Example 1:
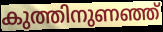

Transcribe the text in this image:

കുത്തിനുണഞ്ഞ്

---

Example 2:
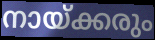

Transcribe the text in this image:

നായ്ക്കരും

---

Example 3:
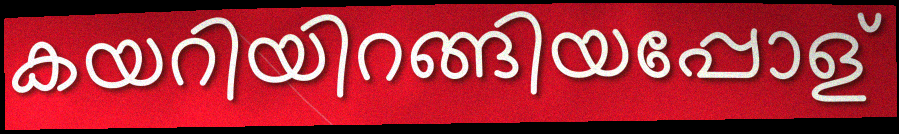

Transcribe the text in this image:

കയറിയിറങ്ങിയപ്പോള്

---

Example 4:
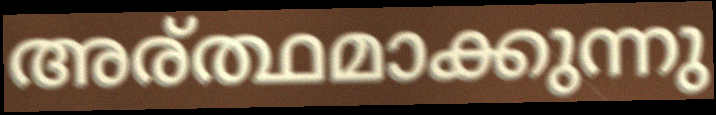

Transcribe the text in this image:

അര്ത്ഥമാക്കുന്നു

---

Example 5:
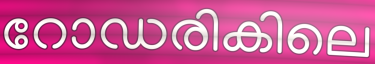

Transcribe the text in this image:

റോഡരികിലെ